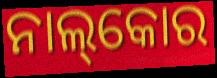
ନାଲ୍‌କୋର